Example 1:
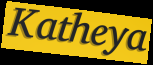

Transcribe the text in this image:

Katheya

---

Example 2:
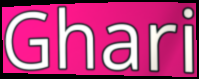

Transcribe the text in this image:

Ghari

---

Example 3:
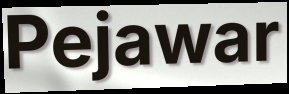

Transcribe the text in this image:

Pejawar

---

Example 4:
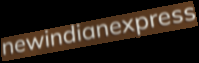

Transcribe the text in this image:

newindianexpress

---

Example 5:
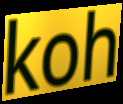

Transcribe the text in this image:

koh